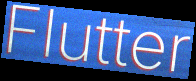
Flutter